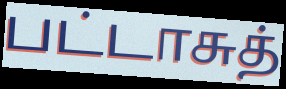
பட்டாசுத்